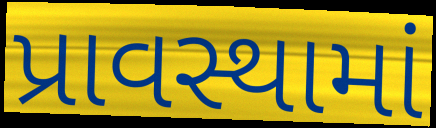
પ્રાવસ્થામાં